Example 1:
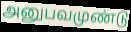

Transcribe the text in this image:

அனுபவமுண்டு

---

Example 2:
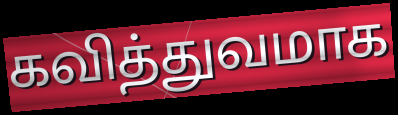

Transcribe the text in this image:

கவித்துவமாக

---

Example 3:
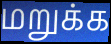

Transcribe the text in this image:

மறுக்க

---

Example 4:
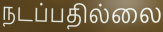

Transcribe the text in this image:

நடப்பதில்லை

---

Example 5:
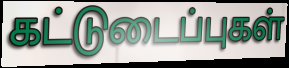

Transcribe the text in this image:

கட்டுடைப்புகள்